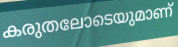
കരുതലോടെയുമാണ്